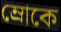
ম্রোকে